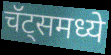
चॅट्समध्ये